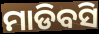
ମାଡିବସି